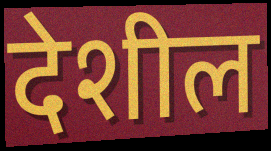
देशील